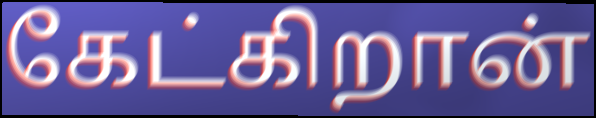
கேட்கிறான்